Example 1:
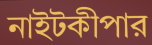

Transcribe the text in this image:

নাইটকীপার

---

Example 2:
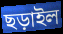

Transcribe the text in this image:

ছড়াইল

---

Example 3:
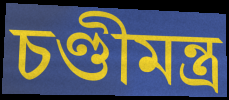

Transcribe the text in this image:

চণ্ডীমন্ত্র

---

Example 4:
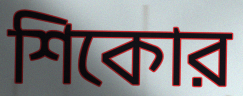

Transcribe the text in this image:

শিকোর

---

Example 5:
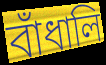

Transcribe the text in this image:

বাঁধালি